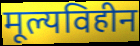
मूल्यविहीन